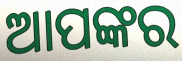
ଆପଙ୍କର